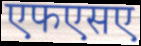
एफएसए